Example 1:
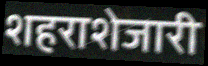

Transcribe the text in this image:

शहराशेजारी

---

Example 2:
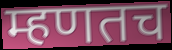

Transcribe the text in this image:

म्हणतच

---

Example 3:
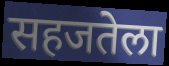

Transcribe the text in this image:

सहजतेला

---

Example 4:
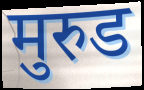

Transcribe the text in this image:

मुरुड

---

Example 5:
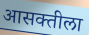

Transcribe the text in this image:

आसक्तीला